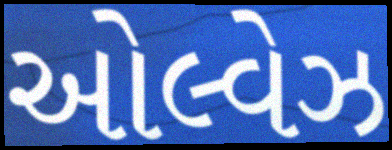
ઓલ્વેઝ